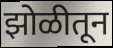
झोळीतून